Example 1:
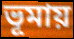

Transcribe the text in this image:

ভূমায়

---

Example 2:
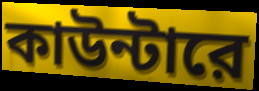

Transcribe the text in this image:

কাউন্টারে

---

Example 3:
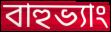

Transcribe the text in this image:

বাহুভ্যাং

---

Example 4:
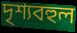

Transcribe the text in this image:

দৃশ্যবহুল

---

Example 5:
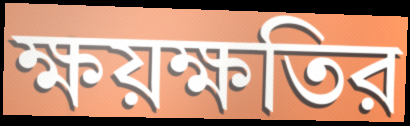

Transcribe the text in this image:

ক্ষয়ক্ষতির